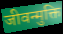
जीवन्मुक्ति